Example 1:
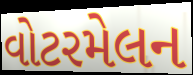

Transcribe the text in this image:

વોટરમેલન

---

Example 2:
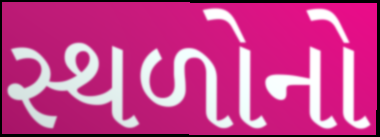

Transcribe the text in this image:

સ્થળોનો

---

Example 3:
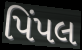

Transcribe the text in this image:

પિંપલ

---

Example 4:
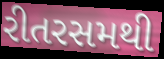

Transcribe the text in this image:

રીતરસમથી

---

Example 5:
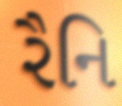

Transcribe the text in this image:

રૈનિ